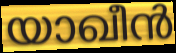
യാഖീൻ